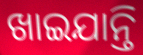
ଖାଇଯାନ୍ତି